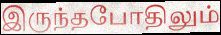
இருந்தபோதிலும்